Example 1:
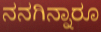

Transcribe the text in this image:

ನನಗಿನ್ನಾರೂ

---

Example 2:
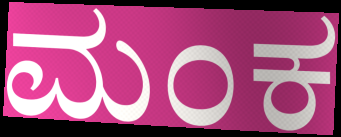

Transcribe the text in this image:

ಮಂಕ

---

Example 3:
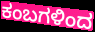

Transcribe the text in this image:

ಕಂಬಗಳಿಂದ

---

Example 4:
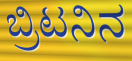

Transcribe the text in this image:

ಬ್ರಿಟನಿನ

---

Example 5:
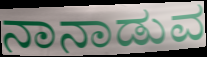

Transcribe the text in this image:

ನಾನಾಡುವ